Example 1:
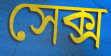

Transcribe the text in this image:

সেক্স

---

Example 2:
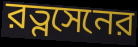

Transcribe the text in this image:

রত্নসেনের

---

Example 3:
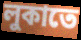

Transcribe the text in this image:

লুকাতে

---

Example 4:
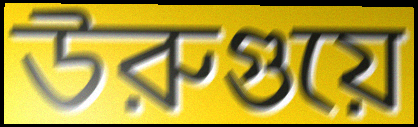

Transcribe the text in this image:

উরুগুয়ে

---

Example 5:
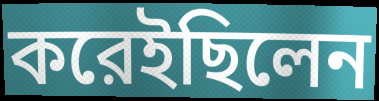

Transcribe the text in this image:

করেইছিলেন